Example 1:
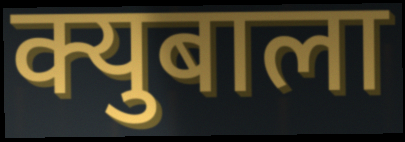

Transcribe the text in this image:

क्युबाला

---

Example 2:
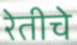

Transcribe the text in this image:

रेतीचे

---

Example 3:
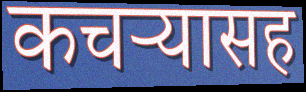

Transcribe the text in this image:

कचऱ्यासह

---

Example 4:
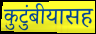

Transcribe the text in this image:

कुटुंबीयासह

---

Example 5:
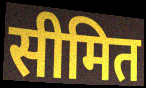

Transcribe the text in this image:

सीमित